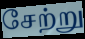
சேற்று